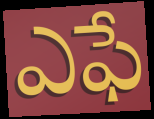
ఎఫే